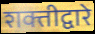
शक्तीद्वारे